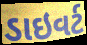
ડાઇવર્ટ